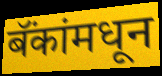
बॅंकांमधून